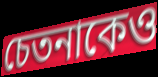
চেতনাকেও